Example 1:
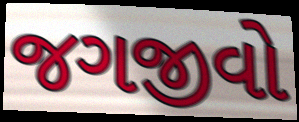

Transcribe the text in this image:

જગજીવો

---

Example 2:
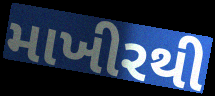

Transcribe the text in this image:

માખીરથી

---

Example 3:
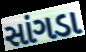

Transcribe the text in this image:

સાંગડા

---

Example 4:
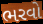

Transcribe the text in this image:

ભરવો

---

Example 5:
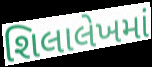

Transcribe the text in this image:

શિલાલેખમાં